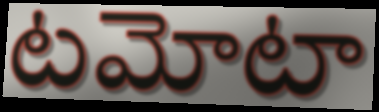
టమోటా